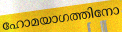
ഹോമയാഗത്തിനോ